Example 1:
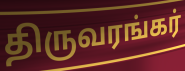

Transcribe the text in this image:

திருவரங்கர்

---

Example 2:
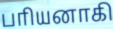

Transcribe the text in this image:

பரியனாகி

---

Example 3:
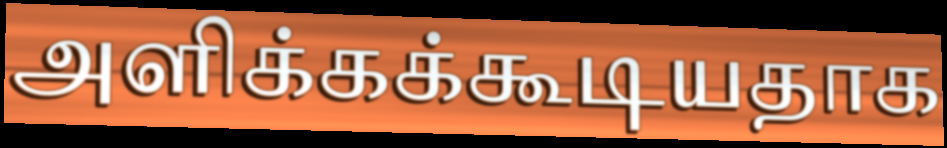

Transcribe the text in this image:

அளிக்கக்கூடியதாக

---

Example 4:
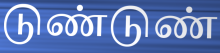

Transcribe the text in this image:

டுண்டுண்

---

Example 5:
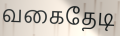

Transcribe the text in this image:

வகைதேடி